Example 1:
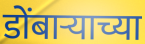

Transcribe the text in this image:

डोंबाऱ्याच्या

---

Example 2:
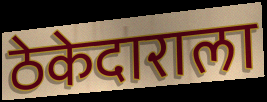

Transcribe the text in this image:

ठेकेदाराला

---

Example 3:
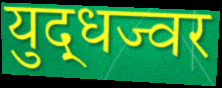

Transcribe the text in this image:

युद्धज्वर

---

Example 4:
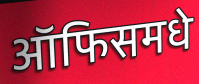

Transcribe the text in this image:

ऑफिसमधे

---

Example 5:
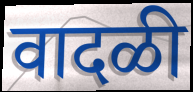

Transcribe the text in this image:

वादळी